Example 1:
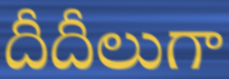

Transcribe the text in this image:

దీదీలుగా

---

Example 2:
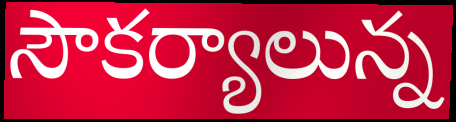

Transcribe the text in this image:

సౌకర్యాలున్న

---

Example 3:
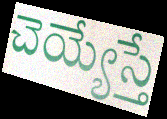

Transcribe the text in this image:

చెయ్యేస్తే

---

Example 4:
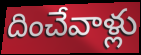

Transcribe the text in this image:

దించేవాళ్లు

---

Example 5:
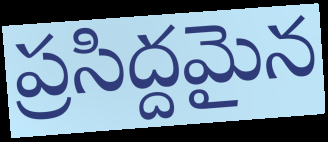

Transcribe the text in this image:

ప్రసిద్దమైన